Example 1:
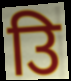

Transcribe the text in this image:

उि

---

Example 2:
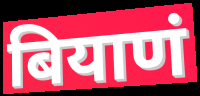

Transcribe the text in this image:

बियाणं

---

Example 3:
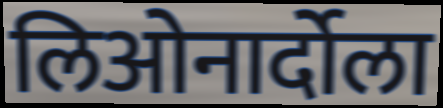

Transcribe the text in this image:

लिओनार्दोला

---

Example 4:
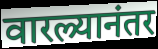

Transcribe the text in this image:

वारल्यानंतर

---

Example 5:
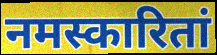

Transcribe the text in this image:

नमस्कारितां